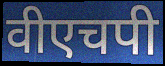
वीएचपी